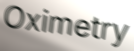
Oximetry